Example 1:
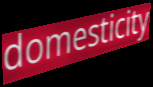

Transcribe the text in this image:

domesticity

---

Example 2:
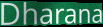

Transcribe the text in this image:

Dharana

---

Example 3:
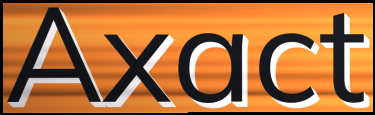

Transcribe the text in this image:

Axact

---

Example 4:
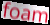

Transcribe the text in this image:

foam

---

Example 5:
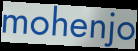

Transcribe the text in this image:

mohenjo